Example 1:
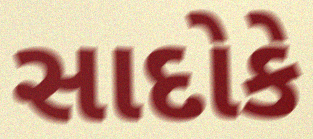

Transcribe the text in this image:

સાદોકે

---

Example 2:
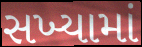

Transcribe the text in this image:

સખ્યામાં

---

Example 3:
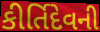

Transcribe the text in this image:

કીર્તિદેવની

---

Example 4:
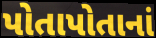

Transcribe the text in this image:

પોતાપોતાનાં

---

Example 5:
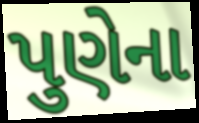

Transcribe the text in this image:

પુણેના